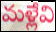
మళ్లేవి